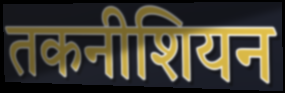
तकनीशियन